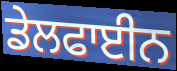
ਡੇਲਫਾਈਨ